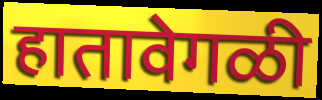
हातावेगळी